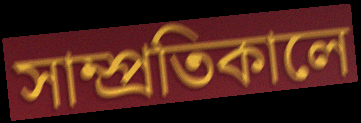
সাম্প্রতিকালে